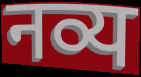
नव्य